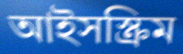
আইসস্ক্রিম